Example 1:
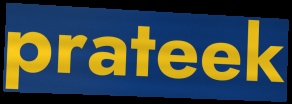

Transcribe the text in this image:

prateek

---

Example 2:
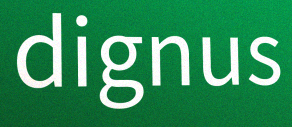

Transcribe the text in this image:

dignus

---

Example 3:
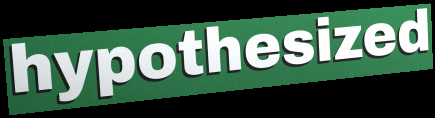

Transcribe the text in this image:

hypothesized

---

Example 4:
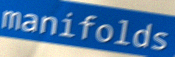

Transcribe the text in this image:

manifolds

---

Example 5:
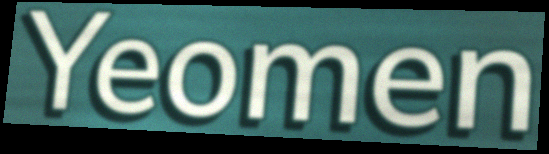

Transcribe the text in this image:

Yeomen